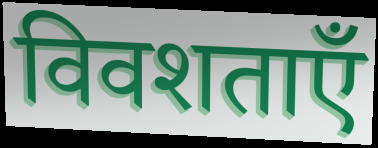
विवशताएँ